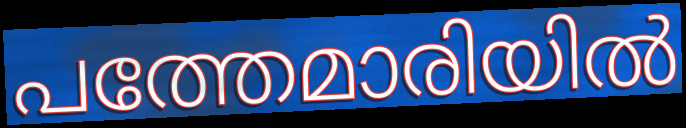
പത്തേമാരിയിൽ